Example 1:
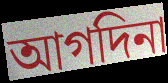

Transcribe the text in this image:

আগদিনা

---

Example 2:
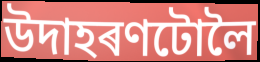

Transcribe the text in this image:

উদাহৰণটোলৈ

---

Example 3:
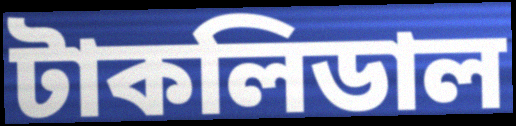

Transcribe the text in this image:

টাকলিডাল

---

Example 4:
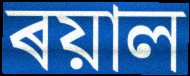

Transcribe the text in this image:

ৰয়াল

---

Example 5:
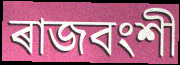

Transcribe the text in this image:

ৰাজবংশী